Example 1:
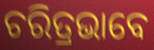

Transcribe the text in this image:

ଚରିତ୍ରଭାବେ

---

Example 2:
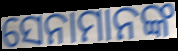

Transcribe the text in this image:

ସେନାମାନଙ୍କ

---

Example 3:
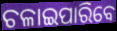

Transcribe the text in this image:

ଚଳାଇପାରିବେ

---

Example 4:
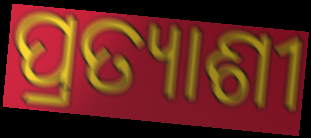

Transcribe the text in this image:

ପ୍ରତ୍ୟାଶୀ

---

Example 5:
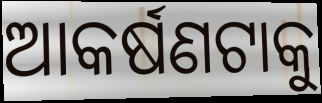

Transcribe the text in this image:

ଆକର୍ଷଣଟାକୁ